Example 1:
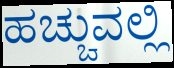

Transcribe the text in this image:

ಹಚ್ಚುವಲ್ಲಿ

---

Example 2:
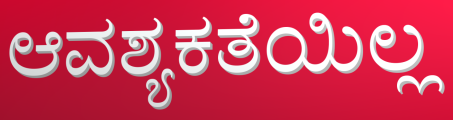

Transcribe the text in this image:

ಆವಶ್ಯಕತೆಯಿಲ್ಲ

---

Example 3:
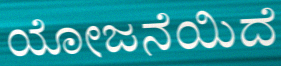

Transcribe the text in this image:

ಯೋಜನೆಯಿದೆ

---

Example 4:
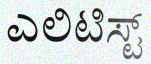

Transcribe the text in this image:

ಎಲಿಟಿಸ್ಟ್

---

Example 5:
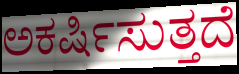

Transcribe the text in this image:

ಅಕರ್ಷಿಸುತ್ತದೆ